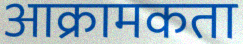
आक्रामकता